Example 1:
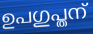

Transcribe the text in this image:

ഉപഗുപ്തന്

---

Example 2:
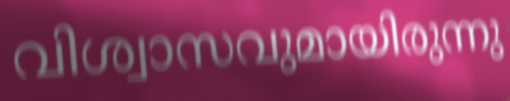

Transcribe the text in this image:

വിശ്വാസവുമായിരുന്നു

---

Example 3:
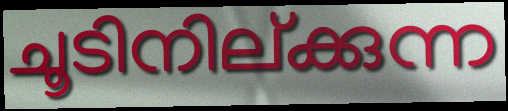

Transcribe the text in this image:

ചൂടിനില്ക്കുന്ന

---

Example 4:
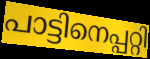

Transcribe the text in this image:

പാട്ടിനെപ്പറ്റി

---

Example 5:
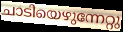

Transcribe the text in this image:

ചാടിയെഴുന്നേറ്റു